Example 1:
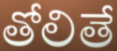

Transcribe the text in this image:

తోలితే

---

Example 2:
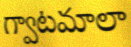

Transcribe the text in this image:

గ్వాటమాలా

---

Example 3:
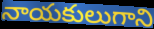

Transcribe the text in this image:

నాయకులుగాని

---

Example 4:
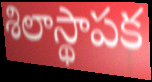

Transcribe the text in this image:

శిలాస్థాపక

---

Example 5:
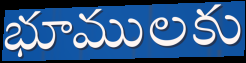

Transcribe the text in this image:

భూములకు